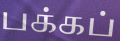
பக்கப்